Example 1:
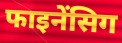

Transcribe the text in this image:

फाइनेंसिग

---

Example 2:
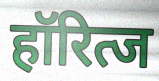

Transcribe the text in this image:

हॉरित्ज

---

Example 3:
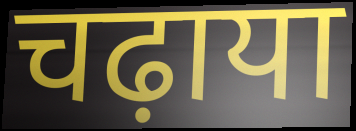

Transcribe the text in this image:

चढ़ाया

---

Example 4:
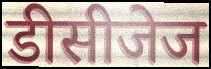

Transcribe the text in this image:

डीसीजेज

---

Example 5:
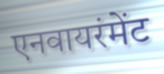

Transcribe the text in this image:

एनवायरंमेंट